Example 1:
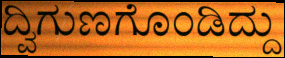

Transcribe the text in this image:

ದ್ವಿಗುಣಗೊಂಡಿದ್ದು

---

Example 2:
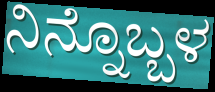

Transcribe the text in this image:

ನಿನ್ನೊಬ್ಬಳ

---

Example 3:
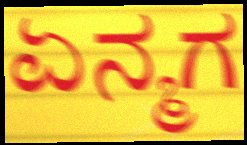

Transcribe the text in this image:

ಏನ್ಮಗ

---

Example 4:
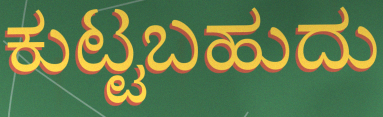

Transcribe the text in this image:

ಕುಟ್ಟಬಹುದು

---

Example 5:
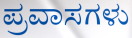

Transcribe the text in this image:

ಪ್ರವಾಸಗಳು